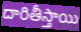
దారితీస్తాయి